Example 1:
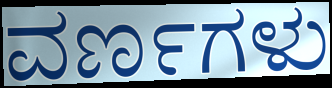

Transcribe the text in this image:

ವರ್ಣಗಳು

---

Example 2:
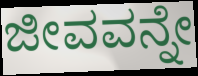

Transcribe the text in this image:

ಜೀವವನ್ನೇ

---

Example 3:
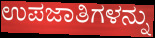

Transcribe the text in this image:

ಉಪಜಾತಿಗಳನ್ನು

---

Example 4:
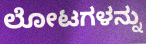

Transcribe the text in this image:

ಲೋಟಗಳನ್ನು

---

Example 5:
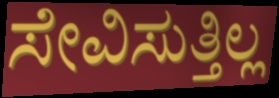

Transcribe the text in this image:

ಸೇವಿಸುತ್ತಿಲ್ಲ